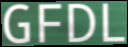
GFDL